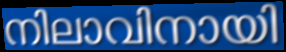
നിലാവിനായി